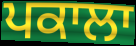
ਪਕਾਲਾ